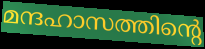
മന്ദഹാസത്തിന്റെ